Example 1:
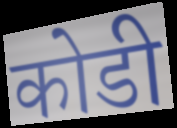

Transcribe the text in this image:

कोडी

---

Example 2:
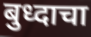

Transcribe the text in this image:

बुध्दाचा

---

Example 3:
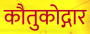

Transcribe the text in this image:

कौतुकोद्गार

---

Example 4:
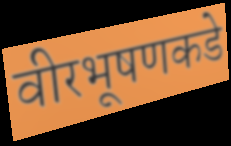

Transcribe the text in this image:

वीरभूषणकडे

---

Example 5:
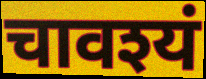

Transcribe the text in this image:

चावश्यं